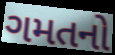
ગમતનો